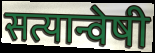
सत्यान्वेषी